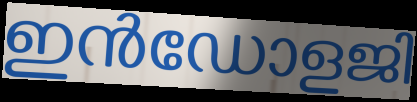
ഇൻഡോളജി